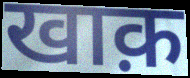
खाक़